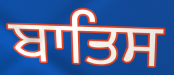
ਬਾਤਿਸ